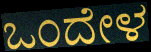
ಒಂದೇಳ